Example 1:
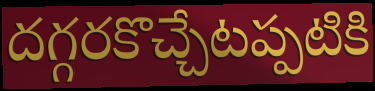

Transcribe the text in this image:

దగ్గరకొచ్చేటప్పటికి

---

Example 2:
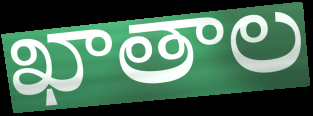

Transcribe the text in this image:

ఖాతాల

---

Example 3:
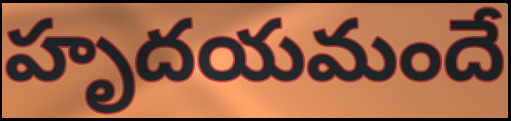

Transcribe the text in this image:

హృదయమందే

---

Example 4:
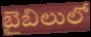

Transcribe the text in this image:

బైబిలులో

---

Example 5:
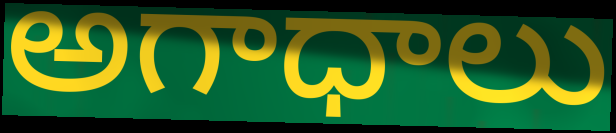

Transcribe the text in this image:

అగాధాలు